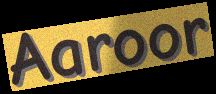
Aaroor